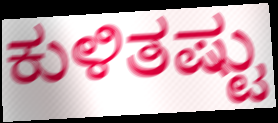
ಕುಳಿತಷ್ಟು